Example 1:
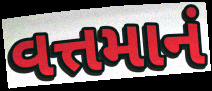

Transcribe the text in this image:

વત્તમાનં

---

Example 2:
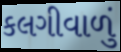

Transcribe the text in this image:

કલગીવાળું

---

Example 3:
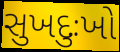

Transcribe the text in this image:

સુખદુઃખો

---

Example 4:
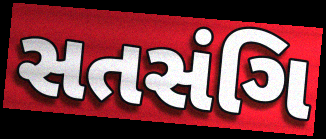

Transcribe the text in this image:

સતસંગિ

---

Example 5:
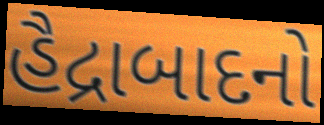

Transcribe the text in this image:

હૈદ્રાબાદનો